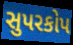
સુપરકોપ